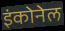
इंकोनेल